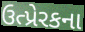
ઉત્પ્રેરકના